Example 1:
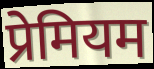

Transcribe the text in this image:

प्रेमियम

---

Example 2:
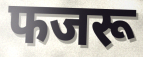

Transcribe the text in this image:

फजरू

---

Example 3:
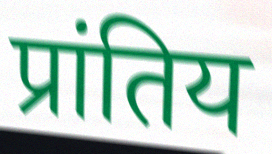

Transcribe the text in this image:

प्रांतिय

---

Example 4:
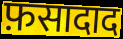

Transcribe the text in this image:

फ़सादाद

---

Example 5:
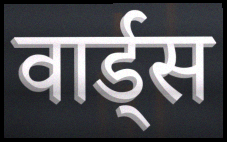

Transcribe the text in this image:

वार्ड्स